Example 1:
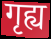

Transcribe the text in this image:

गृह्य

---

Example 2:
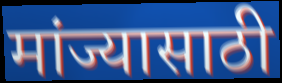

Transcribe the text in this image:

मांज्यासाठी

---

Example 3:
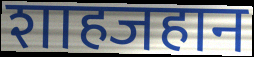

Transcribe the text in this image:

शाहजहान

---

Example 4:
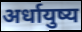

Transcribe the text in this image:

अर्धायुष्य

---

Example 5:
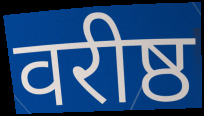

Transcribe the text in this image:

वरीष्ठ